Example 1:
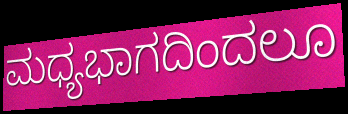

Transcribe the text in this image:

ಮಧ್ಯಭಾಗದಿಂದಲೂ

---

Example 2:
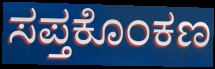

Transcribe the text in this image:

ಸಪ್ತಕೊಂಕಣ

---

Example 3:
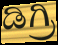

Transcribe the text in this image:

ಡಿಗ್ರಿ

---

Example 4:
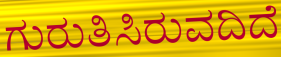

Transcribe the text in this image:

ಗುರುತಿಸಿರುವದಿದೆ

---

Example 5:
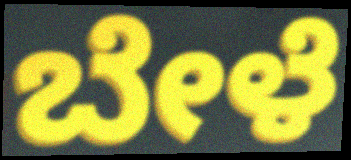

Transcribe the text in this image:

ಬೇಳೆ